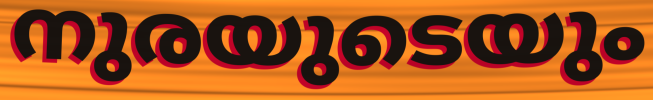
നുരയുടെയും